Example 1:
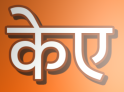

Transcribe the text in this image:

केए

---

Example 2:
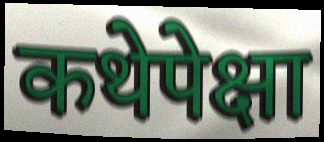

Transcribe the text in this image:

कथेपेक्षा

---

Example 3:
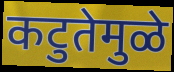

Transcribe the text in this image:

कटुतेमुळे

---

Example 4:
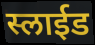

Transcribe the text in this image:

स्लाईड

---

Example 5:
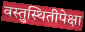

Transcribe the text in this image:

वस्तुस्थितीपेक्षा